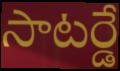
సాటర్డే